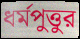
ধর্মপুত্তুর